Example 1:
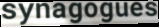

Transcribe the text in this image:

synagogues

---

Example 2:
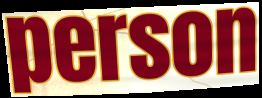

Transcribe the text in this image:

person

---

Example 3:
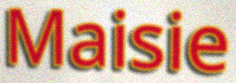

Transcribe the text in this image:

Maisie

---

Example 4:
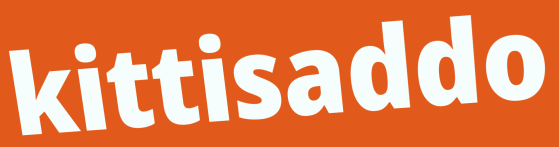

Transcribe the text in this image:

kittisaddo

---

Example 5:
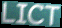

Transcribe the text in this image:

LICT